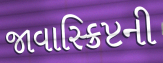
જાવાસ્ક્રિપ્ટની